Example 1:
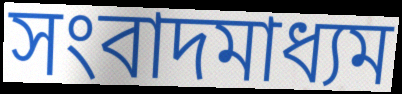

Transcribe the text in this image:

সংবাদমাধ্যম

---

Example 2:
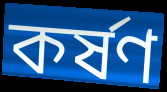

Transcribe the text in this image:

কর্ষণ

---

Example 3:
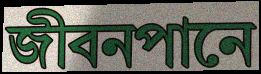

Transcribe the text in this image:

জীবনপানে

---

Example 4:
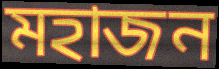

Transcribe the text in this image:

মহাজন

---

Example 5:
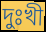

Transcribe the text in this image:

দুঃখী